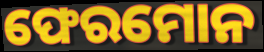
ଫେରମୋନ